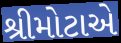
શ્રીમોટાએ